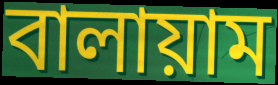
বালায়াম